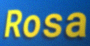
Rosa